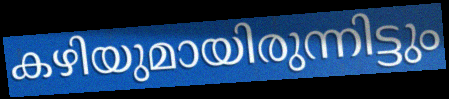
കഴിയുമായിരുന്നിട്ടും